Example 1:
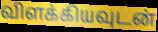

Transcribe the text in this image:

விளக்கியவுடன்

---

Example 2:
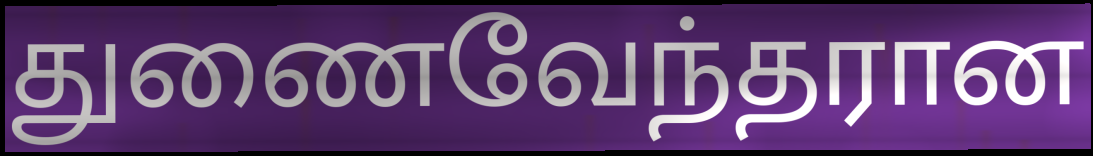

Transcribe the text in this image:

துணைவேந்தரான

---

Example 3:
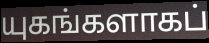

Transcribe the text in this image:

யுகங்களாகப்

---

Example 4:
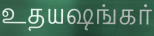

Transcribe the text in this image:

உதயஷங்கர்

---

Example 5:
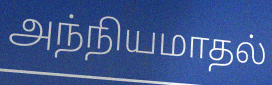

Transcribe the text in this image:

அந்நியமாதல்